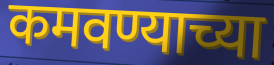
कमवण्याच्या